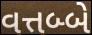
વત્તબ્બે